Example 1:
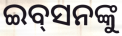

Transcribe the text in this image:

ଇବ୍‌ସନଙ୍କୁ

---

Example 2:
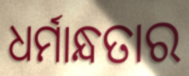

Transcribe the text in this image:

ଧର୍ମାନ୍ଧତାର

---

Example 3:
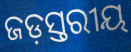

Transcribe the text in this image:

ଜଡ଼ସ୍ତରୀୟ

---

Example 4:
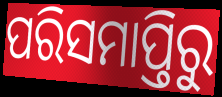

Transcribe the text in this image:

ପରିସମାପ୍ତିରୁ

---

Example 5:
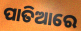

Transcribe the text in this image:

ପାତିଆରେ